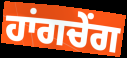
ਹਾਂਗਚੇਂਗ